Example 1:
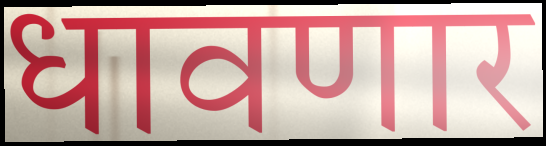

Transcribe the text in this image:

धावणार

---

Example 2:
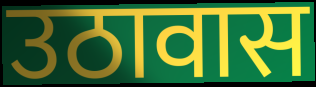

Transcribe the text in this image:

उठावास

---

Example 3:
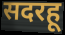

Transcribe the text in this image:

सदरहू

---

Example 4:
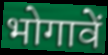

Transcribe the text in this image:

भोगावें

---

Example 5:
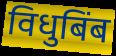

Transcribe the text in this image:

विधुबिंब